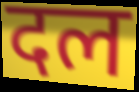
दल